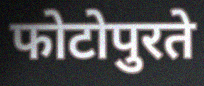
फोटोपुरते